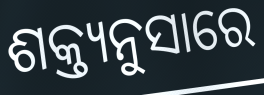
ଶକ୍ତ୍ୟନୁସାରେ